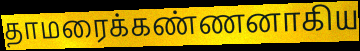
தாமரைக்கண்ணனாகிய